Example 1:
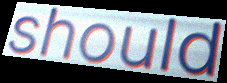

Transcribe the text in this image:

should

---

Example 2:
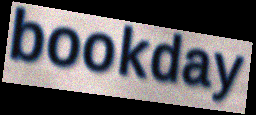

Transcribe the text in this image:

bookday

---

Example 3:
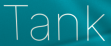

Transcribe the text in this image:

Tank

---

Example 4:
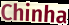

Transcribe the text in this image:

Chinha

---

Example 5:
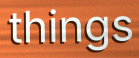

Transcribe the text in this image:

things